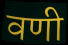
वणी